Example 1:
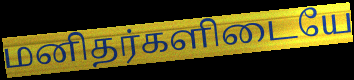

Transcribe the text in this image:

மனிதர்களிடையே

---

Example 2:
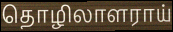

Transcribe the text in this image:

தொழிலாளராய்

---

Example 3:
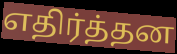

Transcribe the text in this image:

எதிர்த்தன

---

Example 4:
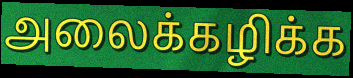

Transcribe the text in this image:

அலைக்கழிக்க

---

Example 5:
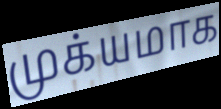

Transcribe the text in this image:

முக்யமாக